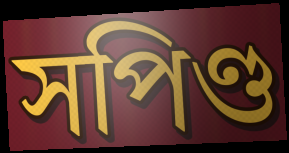
সপিণ্ড